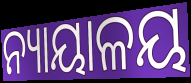
ନ୍ୟାୟାଳୟ